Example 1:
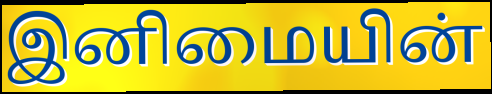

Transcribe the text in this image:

இனிமையின்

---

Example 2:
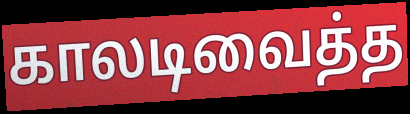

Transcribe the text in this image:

காலடிவைத்த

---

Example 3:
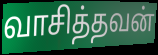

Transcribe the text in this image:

வாசித்தவன்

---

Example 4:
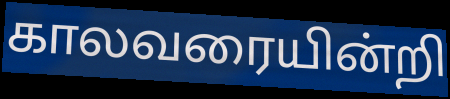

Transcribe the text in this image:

காலவரையின்றி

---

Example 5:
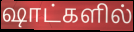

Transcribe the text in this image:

ஷாட்களில்